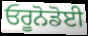
ਓਰੂਨੋਡੋਈ